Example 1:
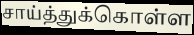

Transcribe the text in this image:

சாய்த்துக்கொள்ள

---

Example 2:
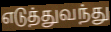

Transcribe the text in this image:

எடுத்துவந்து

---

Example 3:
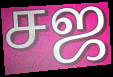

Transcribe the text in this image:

சஜ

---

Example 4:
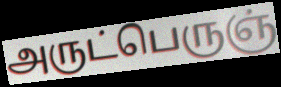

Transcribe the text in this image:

அருட்பெருஞ்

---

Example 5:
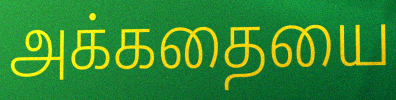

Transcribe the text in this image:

அக்கதையை